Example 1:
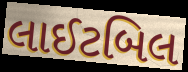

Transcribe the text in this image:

લાઈટબિલ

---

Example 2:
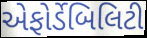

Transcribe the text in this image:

એફોર્ડેબિલિટી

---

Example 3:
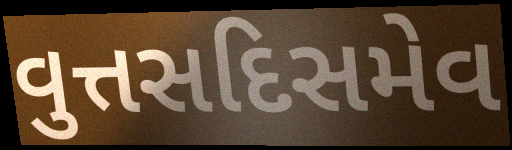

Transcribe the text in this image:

વુત્તસદિસમેવ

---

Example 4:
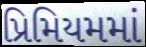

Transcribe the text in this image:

પ્રિમિયમમાં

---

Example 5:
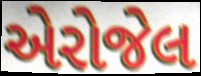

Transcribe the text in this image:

એરોજેલ